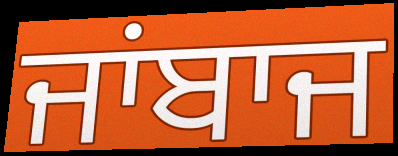
ਜਾਂਬਾਜ